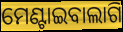
ମେଣ୍ଟାଇବାଲାଗି